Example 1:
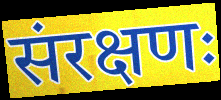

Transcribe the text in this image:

संरक्षणः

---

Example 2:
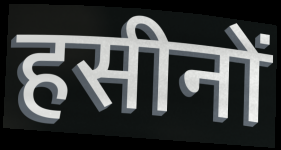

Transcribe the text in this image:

हसीनों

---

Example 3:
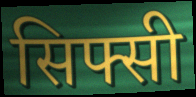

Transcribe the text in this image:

सिफ्सी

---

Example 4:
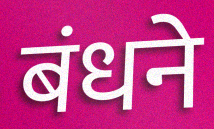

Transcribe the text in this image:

बंधने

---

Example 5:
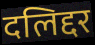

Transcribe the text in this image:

दलिद्दर